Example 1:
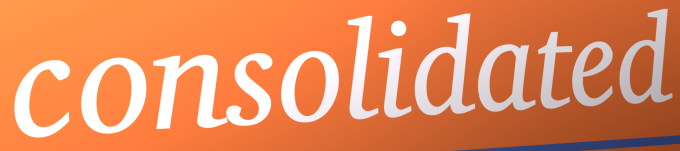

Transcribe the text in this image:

consolidated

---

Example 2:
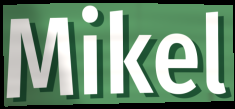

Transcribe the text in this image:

Mikel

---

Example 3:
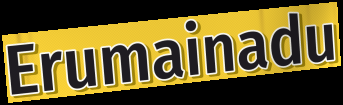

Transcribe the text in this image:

Erumainadu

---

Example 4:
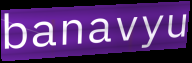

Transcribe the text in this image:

banavyu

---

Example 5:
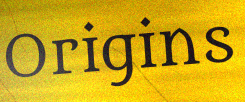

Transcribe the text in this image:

Origins